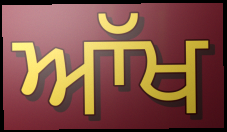
ਆੱਖ